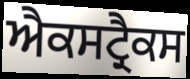
ਐਕਸਟ੍ਰੈਕਸ